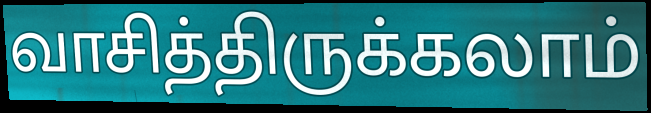
வாசித்திருக்கலாம்